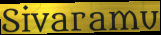
Sivaramu